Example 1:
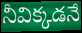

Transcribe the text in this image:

నీవిక్కడనే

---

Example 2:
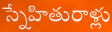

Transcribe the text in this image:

స్నేహితురాళ్లు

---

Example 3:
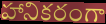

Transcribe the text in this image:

హానికరంగా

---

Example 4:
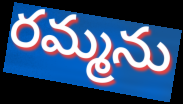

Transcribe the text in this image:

రమ్మను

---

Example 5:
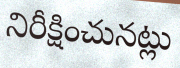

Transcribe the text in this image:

నిరీక్షించునట్లు